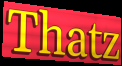
Thatz